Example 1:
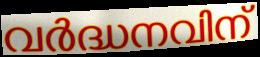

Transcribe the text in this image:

വർദ്ധനവിന്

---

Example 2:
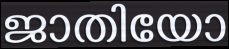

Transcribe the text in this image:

ജാതിയോ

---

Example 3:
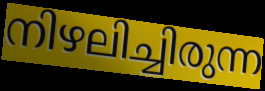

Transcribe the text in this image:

നിഴലിച്ചിരുന്ന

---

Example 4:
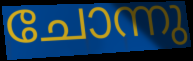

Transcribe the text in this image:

ചോന്നു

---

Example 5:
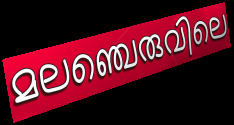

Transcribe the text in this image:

മലഞ്ചെരുവിലെ